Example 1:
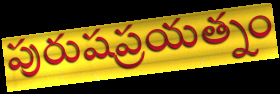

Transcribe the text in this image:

పురుషప్రయత్నం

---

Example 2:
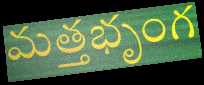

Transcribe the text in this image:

మత్తభృంగ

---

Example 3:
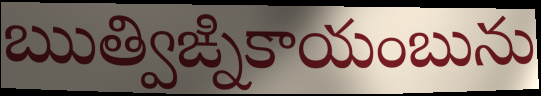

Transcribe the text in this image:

ఋత్విఙ్నికాయంబును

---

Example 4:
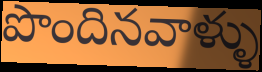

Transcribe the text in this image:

పొందినవాళ్ళు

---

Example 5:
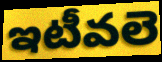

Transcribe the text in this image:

ఇటీవలె